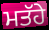
ਮਤੱਹੇ